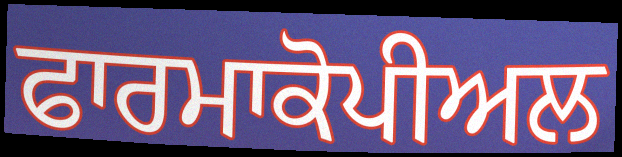
ਫਾਰਮਾਕੋਪੀਅਲ